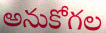
అనుకోగల